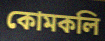
কোমকলি